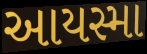
આયસ્મા